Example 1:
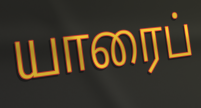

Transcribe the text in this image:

யாரைப்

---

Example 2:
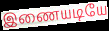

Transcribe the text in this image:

இணையடியே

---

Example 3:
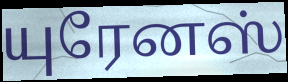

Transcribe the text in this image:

யுரேனஸ்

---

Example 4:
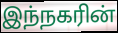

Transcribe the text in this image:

இந்நகரின்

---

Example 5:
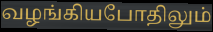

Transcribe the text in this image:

வழங்கியபோதிலும்